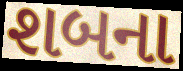
શબના